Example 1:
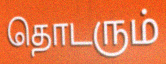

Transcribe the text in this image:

தொடரும்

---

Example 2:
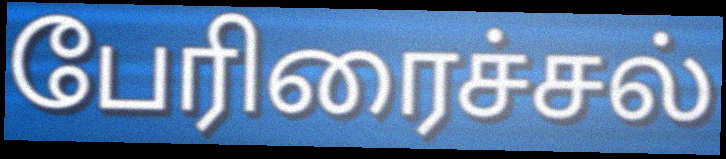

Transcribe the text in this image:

பேரிரைச்சல்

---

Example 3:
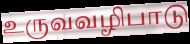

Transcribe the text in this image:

உருவவழிபாடு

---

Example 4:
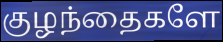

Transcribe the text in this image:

குழந்தைகளே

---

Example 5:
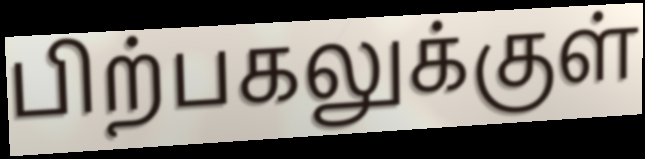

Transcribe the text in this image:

பிற்பகலுக்குள்